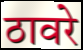
ठावरे